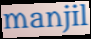
manjil